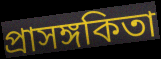
প্রাসঙ্গকিতা